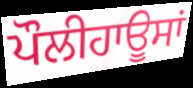
ਪੌਲੀਹਾਊਸਾਂ